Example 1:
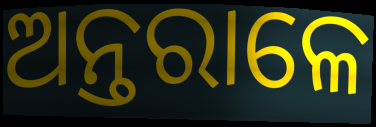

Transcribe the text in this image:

ଅନ୍ତରାଳେ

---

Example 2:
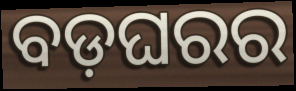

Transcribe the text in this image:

ବଡ଼ଘରର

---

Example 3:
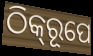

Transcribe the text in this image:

ଠିକ୍‍ରୂପେ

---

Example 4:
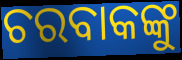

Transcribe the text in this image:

ଚରବାକଙ୍କୁ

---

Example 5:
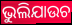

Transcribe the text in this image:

ଭୁଲିଯାଉଚ